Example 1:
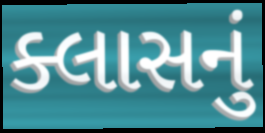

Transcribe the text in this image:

ક્લાસનું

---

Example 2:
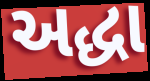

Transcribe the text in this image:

અદ્ધા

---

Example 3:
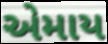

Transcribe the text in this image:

એમાય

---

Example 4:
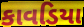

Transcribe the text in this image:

કાવડિયા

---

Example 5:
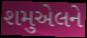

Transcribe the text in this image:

શમુએલને